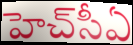
హెచ్‌సీఏ